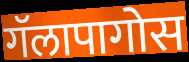
गॅलापागोस